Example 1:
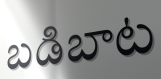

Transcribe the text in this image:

బడిబాట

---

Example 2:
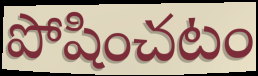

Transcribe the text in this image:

పోషించటం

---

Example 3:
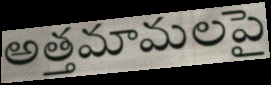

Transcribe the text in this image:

అత్తమామలపై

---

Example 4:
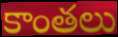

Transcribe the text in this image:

కాంతలు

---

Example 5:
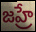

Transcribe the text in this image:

జహ్రే